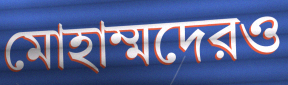
মোহাম্মদেরও